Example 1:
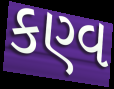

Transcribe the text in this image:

કણ્વ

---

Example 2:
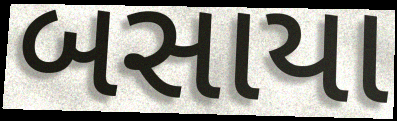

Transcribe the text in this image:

બસાયા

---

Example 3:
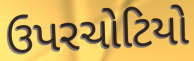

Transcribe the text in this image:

ઉપરચોટિયો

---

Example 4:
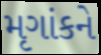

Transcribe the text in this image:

મૃગાંકને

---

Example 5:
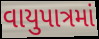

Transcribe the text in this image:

વાયુપાત્રમાં